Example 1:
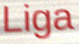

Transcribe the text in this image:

Liga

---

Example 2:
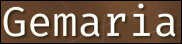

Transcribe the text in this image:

Gemaria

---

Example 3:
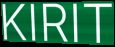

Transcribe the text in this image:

KIRIT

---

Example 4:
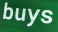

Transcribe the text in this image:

buys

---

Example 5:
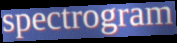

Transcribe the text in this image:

spectrogram